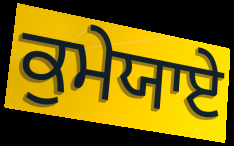
ਕੁਮੇਯਾਏ